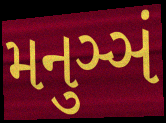
મનુઞ્ઞં